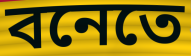
বনেতে